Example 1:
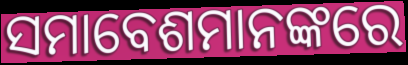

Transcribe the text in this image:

ସମାବେଶମାନଙ୍କରେ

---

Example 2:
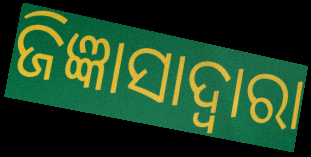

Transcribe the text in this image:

ଜିଜ୍ଞାସାଦ୍ୱାରା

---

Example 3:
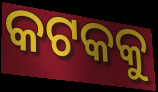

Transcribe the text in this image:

କଟକକୁ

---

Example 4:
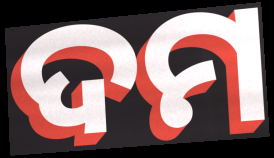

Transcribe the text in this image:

ଦମ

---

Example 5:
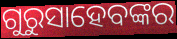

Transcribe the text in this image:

ଗୁରୁସାହେବଙ୍କର